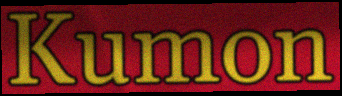
Kumon